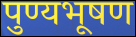
पुण्यभूषण